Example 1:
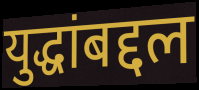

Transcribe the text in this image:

युद्धांबद्दल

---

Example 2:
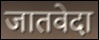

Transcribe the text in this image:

जातवेदा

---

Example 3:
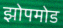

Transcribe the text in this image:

झोपमोड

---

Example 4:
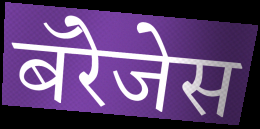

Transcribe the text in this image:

बॅरेजेस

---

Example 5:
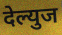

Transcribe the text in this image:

देल्युज